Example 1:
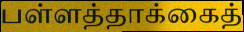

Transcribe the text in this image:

பள்ளத்தாக்கைத்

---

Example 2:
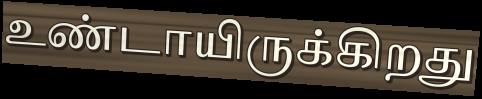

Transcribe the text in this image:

உண்டாயிருக்கிறது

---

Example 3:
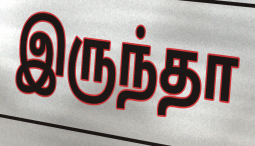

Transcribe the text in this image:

இருந்தா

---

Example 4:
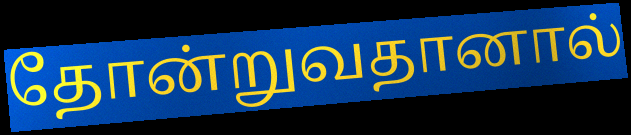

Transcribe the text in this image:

தோன்றுவதானால்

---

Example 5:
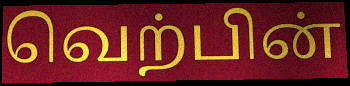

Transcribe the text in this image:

வெற்பின்